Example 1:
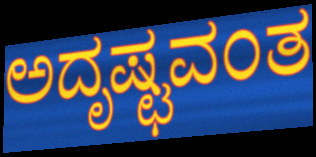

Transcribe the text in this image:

ಅದೃಷ್ಟವಂತ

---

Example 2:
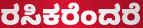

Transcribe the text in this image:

ರಸಿಕರೆಂದರೆ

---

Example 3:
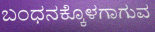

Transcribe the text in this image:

ಬಂಧನಕ್ಕೊಳಗಾಗುವ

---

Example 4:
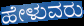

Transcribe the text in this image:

ಹೇಳುವರು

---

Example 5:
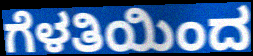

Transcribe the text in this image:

ಗೆಳತಿಯಿಂದ